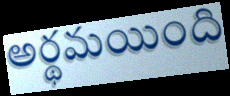
అర్థమయింది